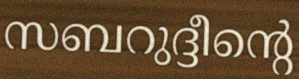
സബറുദ്ദീന്റെ